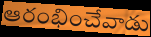
ఆరంభించేవాడు